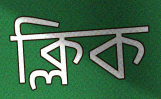
ক্লিক